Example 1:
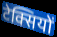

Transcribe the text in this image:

टेक्सियों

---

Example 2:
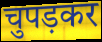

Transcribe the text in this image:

चुपड़कर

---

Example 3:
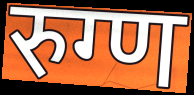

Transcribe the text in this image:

रुग्ण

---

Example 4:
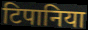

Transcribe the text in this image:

टिपानिया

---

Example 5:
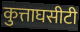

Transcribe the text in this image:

कुत्ताघसीटी